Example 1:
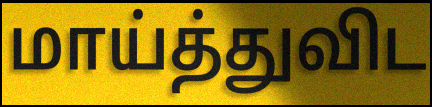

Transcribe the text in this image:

மாய்த்துவிட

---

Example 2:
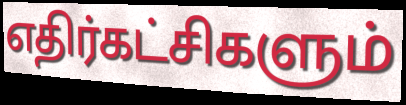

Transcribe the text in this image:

எதிர்கட்சிகளும்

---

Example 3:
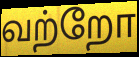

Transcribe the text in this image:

வற்றோ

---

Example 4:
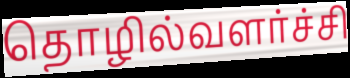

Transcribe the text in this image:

தொழில்வளர்ச்சி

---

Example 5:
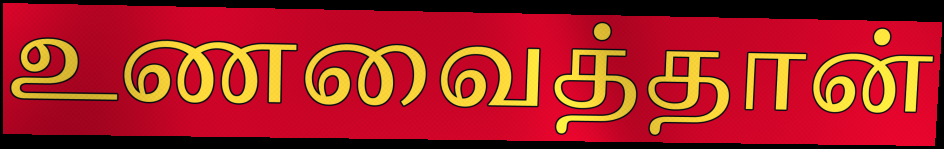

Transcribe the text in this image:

உணவைத்தான்